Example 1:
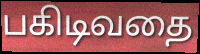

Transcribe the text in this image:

பகிடிவதை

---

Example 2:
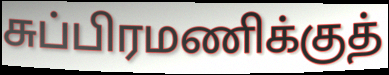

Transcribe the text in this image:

சுப்பிரமணிக்குத்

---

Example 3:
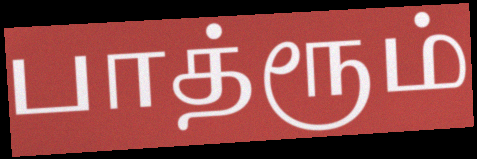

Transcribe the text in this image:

பாத்ரூம்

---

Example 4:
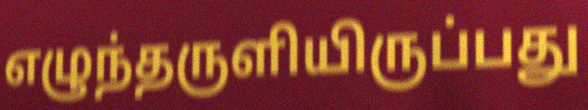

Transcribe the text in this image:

எழுந்தருளியிருப்பது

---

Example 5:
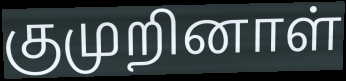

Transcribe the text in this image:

குமுறினாள்